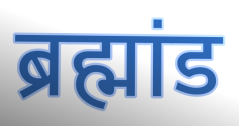
ब्रह्मांड